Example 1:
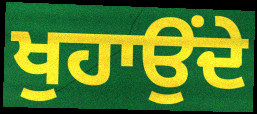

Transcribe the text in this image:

ਖੁਹਾਉਂਦੇ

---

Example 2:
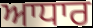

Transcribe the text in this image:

ਆਧਾਰ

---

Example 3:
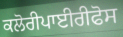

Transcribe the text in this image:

ਕਲੋਰੀਪਾਈਰੀਫੋਸ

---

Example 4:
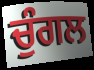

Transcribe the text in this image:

ਚੁੰਗਲ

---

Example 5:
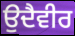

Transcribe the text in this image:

ਉਦੈਵੀਰ